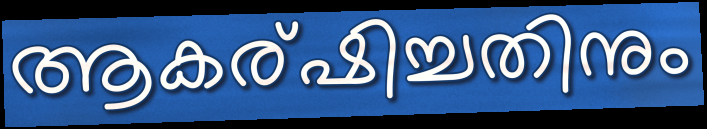
ആകര്ഷിച്ചതിനും